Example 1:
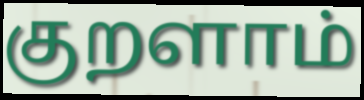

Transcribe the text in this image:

குறளாம்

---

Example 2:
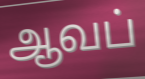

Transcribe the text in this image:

ஆவப்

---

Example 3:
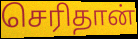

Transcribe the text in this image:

செரிதான்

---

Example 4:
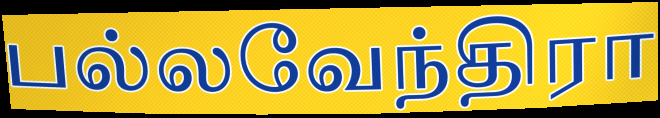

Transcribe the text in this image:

பல்லவேந்திரா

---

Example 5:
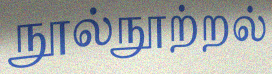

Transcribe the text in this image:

நூல்நூற்றல்